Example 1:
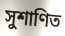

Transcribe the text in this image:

সুশাণিত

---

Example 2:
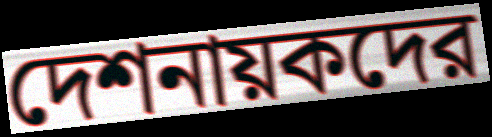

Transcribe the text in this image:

দেশনায়কদের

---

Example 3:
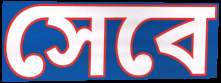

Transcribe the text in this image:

সেবে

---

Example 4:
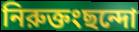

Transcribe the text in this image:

নিরুক্তংছন্দো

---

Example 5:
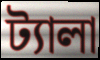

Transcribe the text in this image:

ট্যালা